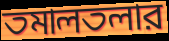
তমালতলার